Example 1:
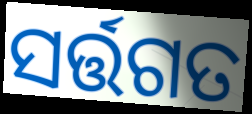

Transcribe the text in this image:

ସର୍ତ୍ତଗତ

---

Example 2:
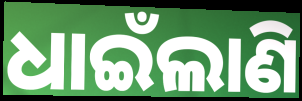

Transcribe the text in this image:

ଧାଇଁଲାଣି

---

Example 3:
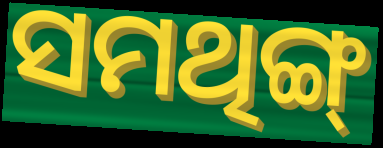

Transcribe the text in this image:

ସମଥିଙ୍ଗ୍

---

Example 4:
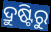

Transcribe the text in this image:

ଦ୍ରୁଷ୍ଟିରୁ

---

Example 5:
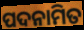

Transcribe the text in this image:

ପଦନାମିତ